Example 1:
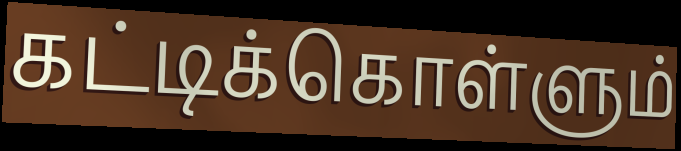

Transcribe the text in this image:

கட்டிக்கொள்ளும்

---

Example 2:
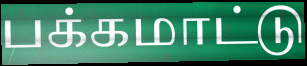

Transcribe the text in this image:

பக்கமாட்டு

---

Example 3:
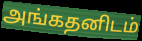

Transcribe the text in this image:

அங்கதனிடம்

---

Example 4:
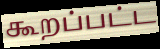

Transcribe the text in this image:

கூறப்பட்ட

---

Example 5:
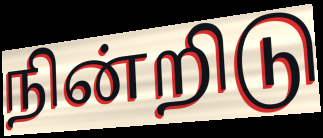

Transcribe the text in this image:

நின்றிடு